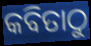
କବିତାଠୁ